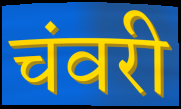
चंवरी